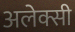
अलेक्सी